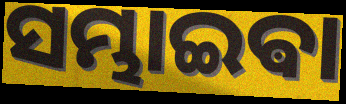
ସମ୍ଭାଇଵା